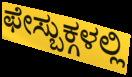
ಫೇಸ್ಬುಕ್ಗಳಲ್ಲಿ